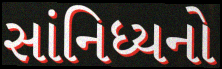
સાંનિધ્યનો